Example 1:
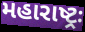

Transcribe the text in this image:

મહારાષ્ટ્રઃ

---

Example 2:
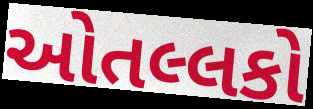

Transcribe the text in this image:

ઓતલ્લકો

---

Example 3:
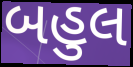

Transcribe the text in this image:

બહુલ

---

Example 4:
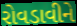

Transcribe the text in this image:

રોવડાવીને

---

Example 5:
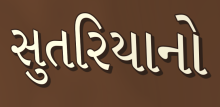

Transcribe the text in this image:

સુતરિયાનો